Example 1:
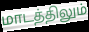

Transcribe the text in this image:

மாடத்திலும்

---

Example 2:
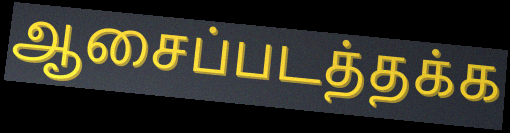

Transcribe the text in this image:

ஆசைப்படத்தக்க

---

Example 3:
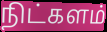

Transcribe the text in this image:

நிட்களம்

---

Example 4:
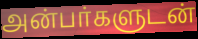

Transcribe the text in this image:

அன்பர்களுடன்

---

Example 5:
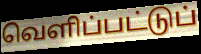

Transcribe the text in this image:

வெளிப்பட்டுப்